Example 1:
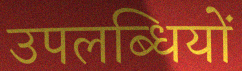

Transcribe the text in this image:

उपलब्धियों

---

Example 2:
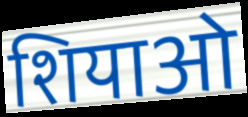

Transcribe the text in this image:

शियाओ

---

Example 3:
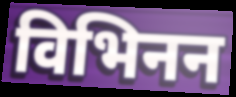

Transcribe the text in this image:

विभिनन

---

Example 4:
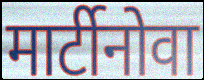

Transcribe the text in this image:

मार्टीनोवा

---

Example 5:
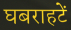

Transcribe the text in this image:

घबराहटें